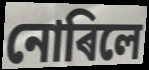
নোৰিলে